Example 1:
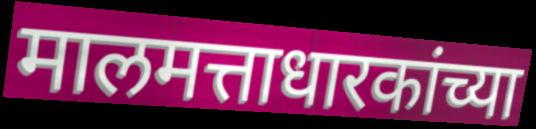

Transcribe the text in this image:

मालमत्ताधारकांच्या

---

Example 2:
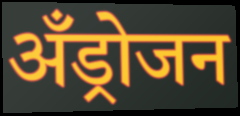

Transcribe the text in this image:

अँड्रोजन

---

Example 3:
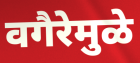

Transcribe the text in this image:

वगैरेमुळे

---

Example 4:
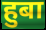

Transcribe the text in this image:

हुबा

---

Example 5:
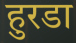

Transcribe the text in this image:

हुरडा